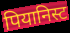
पियानिस्ट